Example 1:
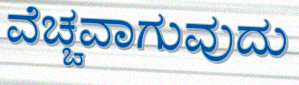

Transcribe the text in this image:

ವೆಚ್ಚವಾಗುವುದು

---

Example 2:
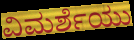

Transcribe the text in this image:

ವಿಮರ್ಶೆಯು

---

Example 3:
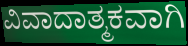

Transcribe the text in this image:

ವಿವಾದಾತ್ಮಕವಾಗಿ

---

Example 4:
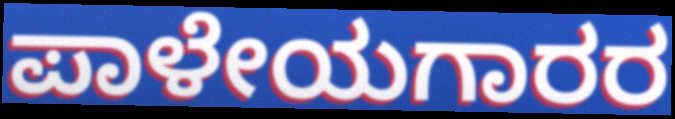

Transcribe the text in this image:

ಪಾಳೇಯಗಾರರ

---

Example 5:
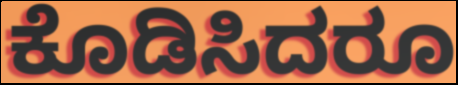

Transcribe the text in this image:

ಕೊಡಿಸಿದರೂ